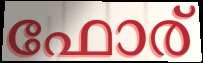
ഫോര്